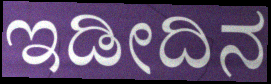
ಇಡೀದಿನ